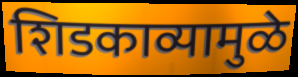
शिडकाव्यामुळे